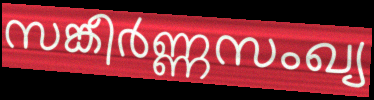
സങ്കീർണ്ണസംഖ്യ